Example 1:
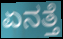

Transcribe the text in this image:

ಏನತ್ತೆ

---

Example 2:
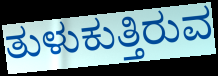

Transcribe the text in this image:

ತುಳುಕುತ್ತಿರುವ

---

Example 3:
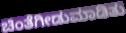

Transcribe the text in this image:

ಚಿಂತೆಗೀಡುಮಾಡಿತು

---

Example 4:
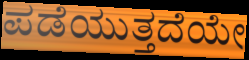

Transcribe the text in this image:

ಪಡೆಯುತ್ತದೆಯೇ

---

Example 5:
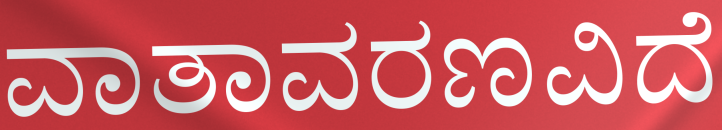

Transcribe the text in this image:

ವಾತಾವರಣವಿದೆ